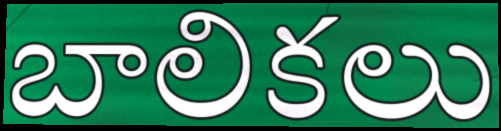
బాలికలు